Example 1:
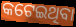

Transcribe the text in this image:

କଟେଇଥିବା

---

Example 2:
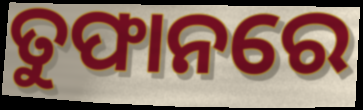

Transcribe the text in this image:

ତୁଫାନରେ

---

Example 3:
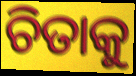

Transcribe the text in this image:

ଚିତାକୁ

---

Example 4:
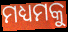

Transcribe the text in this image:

ମଧ୍ୟମକୁ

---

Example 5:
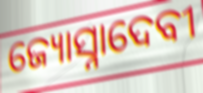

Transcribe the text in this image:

ଜ୍ୟୋସ୍ନାଦେବୀ